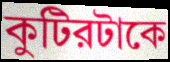
কুটিরটাকে